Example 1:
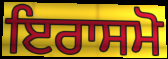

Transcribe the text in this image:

ਇਰਾਸਮੋ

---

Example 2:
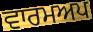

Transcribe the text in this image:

ਵਾਰਮਅਪ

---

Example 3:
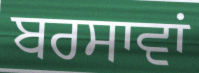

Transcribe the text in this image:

ਬਰਸਾਵਾਂ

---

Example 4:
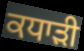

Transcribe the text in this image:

ਕਧਾੜੀ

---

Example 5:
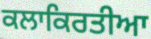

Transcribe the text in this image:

ਕਲਾਕਿਰਤੀਆ